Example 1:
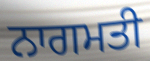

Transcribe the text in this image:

ਨਾਗਮਤੀ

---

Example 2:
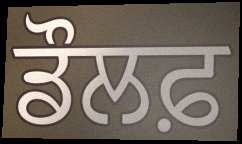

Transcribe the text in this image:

ਡੌਲਫ਼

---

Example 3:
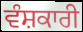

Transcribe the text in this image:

ਵੰਸ਼ਕਾਰੀ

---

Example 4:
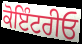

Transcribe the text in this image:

ਕੋਇੰਟਰੀਓ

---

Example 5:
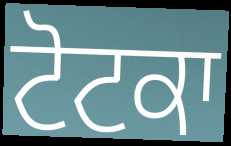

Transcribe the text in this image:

ਟੋਟਕਾ